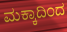
ಮಕ್ಕಾದಿಂದ